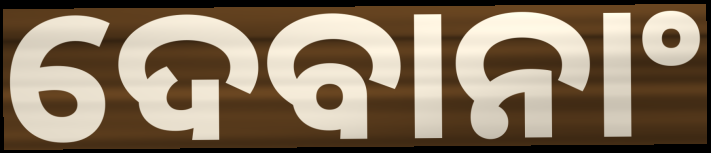
ଦେବାନାଂ